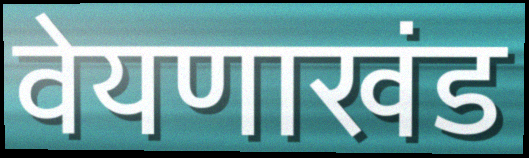
वेयणाखंड